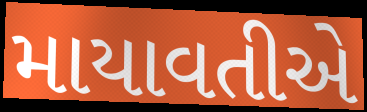
માયાવતીએ